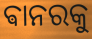
ଵାନରକୁ